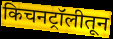
किचनट्रॉलीतून